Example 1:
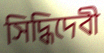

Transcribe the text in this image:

সিদ্ধিদেবী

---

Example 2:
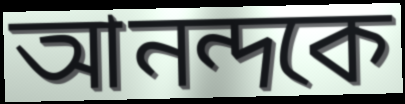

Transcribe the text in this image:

আনন্দকে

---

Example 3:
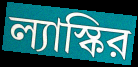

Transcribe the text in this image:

ল্যাস্কির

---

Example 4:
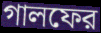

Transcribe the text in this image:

গালফের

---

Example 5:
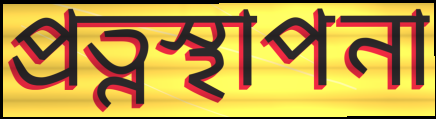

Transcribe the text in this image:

প্রত্নস্থাপনা